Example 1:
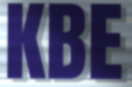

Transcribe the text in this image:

KBE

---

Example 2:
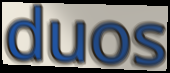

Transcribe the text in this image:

duos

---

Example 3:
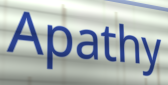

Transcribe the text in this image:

Apathy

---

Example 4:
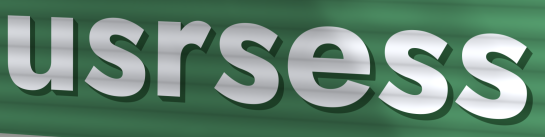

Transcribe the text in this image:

usrsess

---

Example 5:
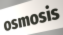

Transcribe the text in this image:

osmosis